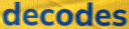
decodes